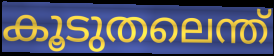
കൂടുതലെന്ത്